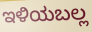
ಇಳಿಯಬಲ್ಲ